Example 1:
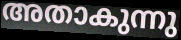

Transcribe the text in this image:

അതാകുന്നു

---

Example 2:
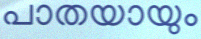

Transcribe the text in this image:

പാതയായും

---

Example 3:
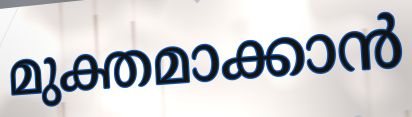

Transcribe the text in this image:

മുക്തമാക്കാൻ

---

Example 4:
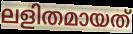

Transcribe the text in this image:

ലളിതമായത്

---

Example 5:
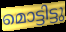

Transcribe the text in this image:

മൊട്ടിട്ടു